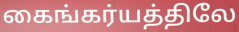
கைங்கர்யத்திலே